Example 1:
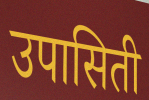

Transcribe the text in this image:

उपासिती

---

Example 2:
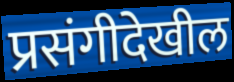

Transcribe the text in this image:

प्रसंगीदेखील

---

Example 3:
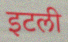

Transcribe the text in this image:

इटली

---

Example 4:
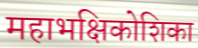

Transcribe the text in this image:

महाभक्षिकोशिका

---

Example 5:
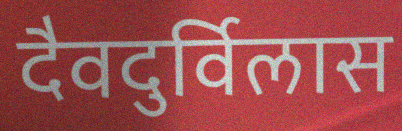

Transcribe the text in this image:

दैवदुर्विलास